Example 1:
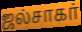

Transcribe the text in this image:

ஜல்சாகர்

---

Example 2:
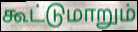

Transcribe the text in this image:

கூட்டுமாறும்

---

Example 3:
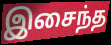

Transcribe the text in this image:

இசைந்த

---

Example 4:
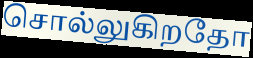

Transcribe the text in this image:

சொல்லுகிறதோ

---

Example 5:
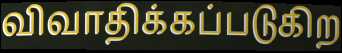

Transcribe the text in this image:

விவாதிக்கப்படுகிற